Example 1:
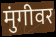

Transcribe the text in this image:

मुंगीवर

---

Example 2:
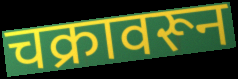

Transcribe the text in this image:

चक्रावरून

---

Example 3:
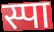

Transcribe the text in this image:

स्पा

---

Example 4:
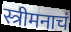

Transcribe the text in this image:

स्त्रीमनाचं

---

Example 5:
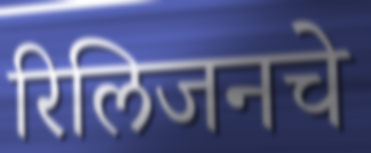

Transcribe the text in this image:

रिलिजनचे